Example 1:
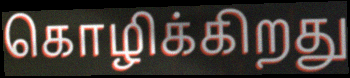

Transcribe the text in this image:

கொழிக்கிறது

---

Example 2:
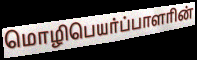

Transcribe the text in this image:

மொழிபெயர்ப்பாளரின்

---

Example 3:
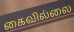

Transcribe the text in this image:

கைவில்லை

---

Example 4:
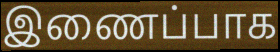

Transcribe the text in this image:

இணைப்பாக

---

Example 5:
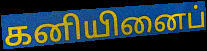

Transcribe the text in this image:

கனியினைப்